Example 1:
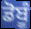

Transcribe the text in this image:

ਡੋਬੂੰ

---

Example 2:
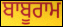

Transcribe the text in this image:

ਬਾਬੂਰਾਮ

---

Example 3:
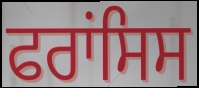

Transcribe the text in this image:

ਫਰਾਂਸਿਸ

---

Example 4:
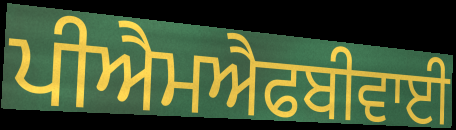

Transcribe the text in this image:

ਪੀਐਮਐਫਬੀਵਾਈ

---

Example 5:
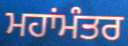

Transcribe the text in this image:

ਮਹਾਂਮੰਤਰ